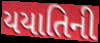
યયાતિની